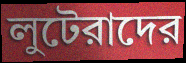
লুটেরাদের